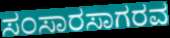
ಸಂಸಾರಸಾಗರವ